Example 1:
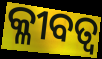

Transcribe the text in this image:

କ୍ଳୀବତ୍ବ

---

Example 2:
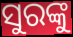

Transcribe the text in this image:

ସୁରଙ୍କୁ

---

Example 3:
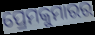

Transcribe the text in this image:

ପ୍ରେମକୁମାରର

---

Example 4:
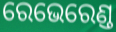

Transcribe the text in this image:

ରେଭେରେଣ୍ଡ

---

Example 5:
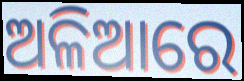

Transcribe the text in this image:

ଅଳିଆରେ